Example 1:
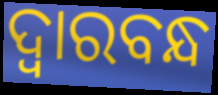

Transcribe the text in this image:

ଦ୍ବାରବନ୍ଧ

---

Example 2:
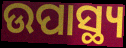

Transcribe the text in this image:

ଉପାସ୍ଥ୍ୟ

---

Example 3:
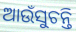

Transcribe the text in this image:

ଆଉଁସୁଚନ୍ତି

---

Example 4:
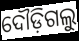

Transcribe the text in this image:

ଦୌଡ଼ିଗଲୁ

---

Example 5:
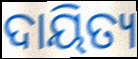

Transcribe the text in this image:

ଦାୟିତ୍ୟ